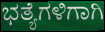
ಭತ್ಯೆಗಳಿಗಾಗಿ